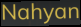
Nahyan